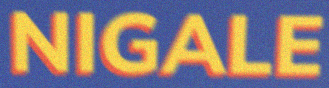
NIGALE